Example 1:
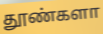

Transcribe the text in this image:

தூண்களா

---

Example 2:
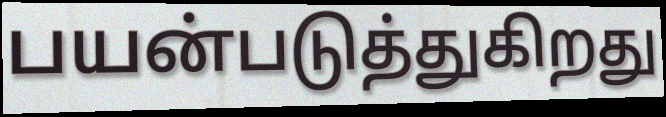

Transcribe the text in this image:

பயன்படுத்துகிறது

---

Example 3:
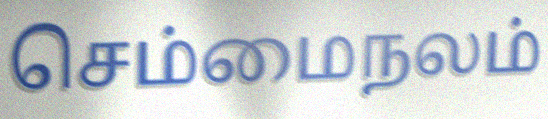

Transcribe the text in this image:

செம்மைநலம்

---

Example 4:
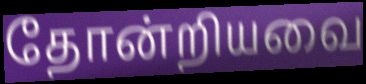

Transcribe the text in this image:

தோன்றியவை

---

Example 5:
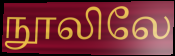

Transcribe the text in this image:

நூலிலே